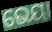
ଭେୟା